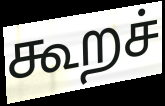
கூறச்